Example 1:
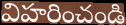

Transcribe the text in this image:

విహరించండి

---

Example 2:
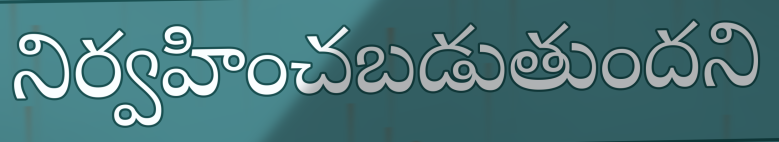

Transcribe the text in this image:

నిర్వహించబడుతుందని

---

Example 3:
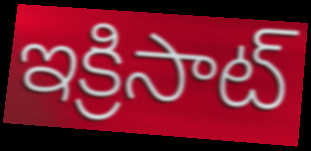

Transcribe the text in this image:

ఇక్రిసాట్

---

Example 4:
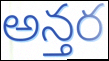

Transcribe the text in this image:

అన్తర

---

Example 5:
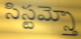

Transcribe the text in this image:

సిస్టమ్స్తో